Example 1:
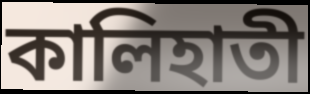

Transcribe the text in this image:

কালিহাতী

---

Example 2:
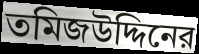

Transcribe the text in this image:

তমিজউদ্দিনের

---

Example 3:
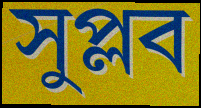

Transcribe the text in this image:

সুপ্লব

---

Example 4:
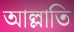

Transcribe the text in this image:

আল্লাতি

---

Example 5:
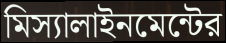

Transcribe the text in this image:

মিস্যালাইনমেন্টের